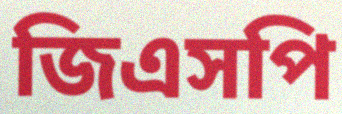
জিএসপি